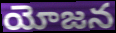
యోజన